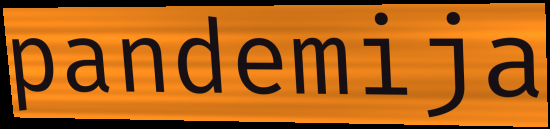
pandemija